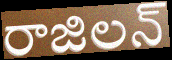
రాజిలన్